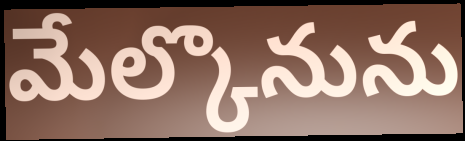
మేల్కొనును